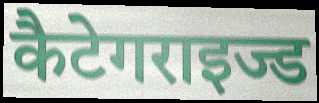
कैटेगराइज्ड